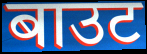
बाउट